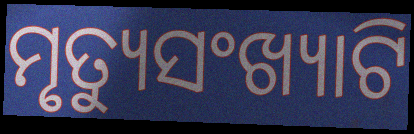
ମୃତ୍ୟୁସଂଖ୍ୟାଟି